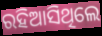
ରହିଆସିଥିଲେ